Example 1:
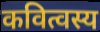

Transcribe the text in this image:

कवित्वस्य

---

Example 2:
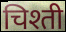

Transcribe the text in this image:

चिश्ती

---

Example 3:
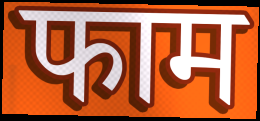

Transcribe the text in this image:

फाम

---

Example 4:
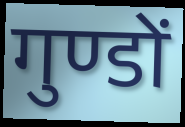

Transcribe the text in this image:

गुण्डों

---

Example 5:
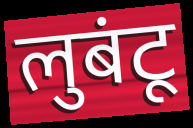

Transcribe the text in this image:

लुबंटू